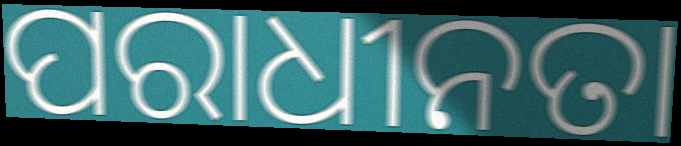
ପରାଧୀନତା